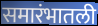
समारंभातली